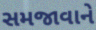
સમજાવાને